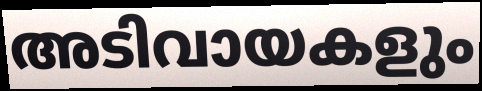
അടിവായകളും